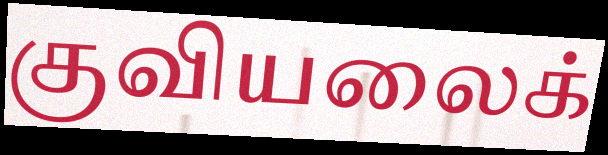
குவியலைக்